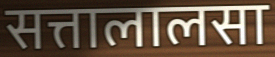
सत्तालालसा